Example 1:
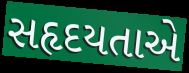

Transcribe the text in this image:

સહૃદયતાએ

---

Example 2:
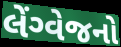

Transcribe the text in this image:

લેંગ્વેજનો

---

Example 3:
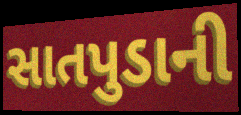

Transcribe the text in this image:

સાતપુડાની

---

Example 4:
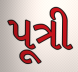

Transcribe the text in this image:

પૂત્રી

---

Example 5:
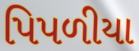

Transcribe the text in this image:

પિપળીયા